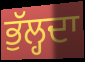
ਭੁੱਲ੍ਹਦਾ